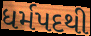
ધર્મપદથી